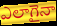
ఎలాగైనా